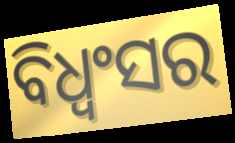
ବିଧ୍ୱଂସର